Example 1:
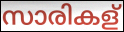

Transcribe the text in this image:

സാരികള്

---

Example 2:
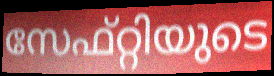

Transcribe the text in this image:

സേഫ്റ്റിയുടെ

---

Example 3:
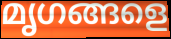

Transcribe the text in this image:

മൃഗങ്ങളെ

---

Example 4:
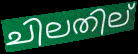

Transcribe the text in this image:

ചിലതില്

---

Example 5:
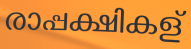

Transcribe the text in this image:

രാപ്പക്ഷികള്